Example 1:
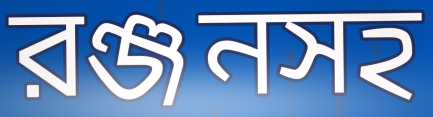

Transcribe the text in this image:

রঞ্জনসহ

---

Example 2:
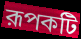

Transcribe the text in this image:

রূপকটি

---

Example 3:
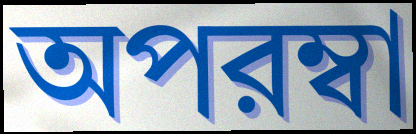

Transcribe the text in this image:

অপরম্বা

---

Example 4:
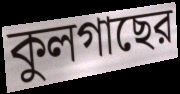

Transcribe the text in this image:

কুলগাছের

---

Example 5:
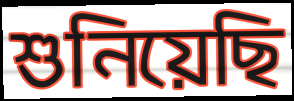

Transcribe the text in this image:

শুনিয়েছি